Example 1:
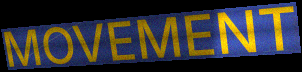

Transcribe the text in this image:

MOVEMENT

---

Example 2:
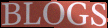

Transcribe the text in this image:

BLOGS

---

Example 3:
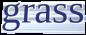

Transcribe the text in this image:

grass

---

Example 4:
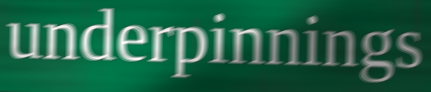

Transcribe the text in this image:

underpinnings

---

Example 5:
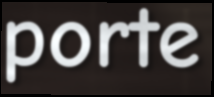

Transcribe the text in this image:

porte